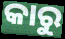
କାରୁ